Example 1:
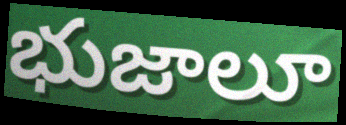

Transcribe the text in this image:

భుజాలూ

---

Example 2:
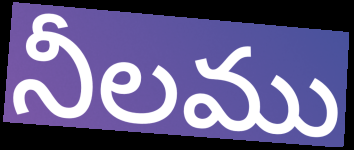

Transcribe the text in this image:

నీలము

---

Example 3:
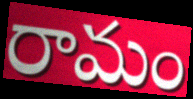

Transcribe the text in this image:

రామం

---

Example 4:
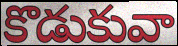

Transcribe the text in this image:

కొడుకువా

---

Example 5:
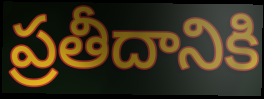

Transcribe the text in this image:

ప్రతీదానికి